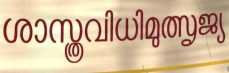
ശാസ്ത്രവിധിമുത്സൃജ്യ